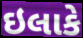
ઇલાકે